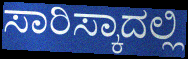
ಸಾರಿಸ್ಕಾದಲ್ಲಿ